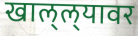
खाल्ल्यावर